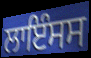
ਲਾਇੰਸਸ